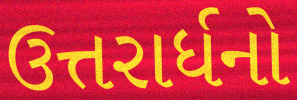
ઉત્તરાર્ધનો